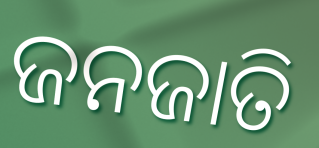
ଜନଜାତି